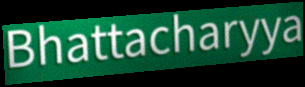
Bhattacharyya